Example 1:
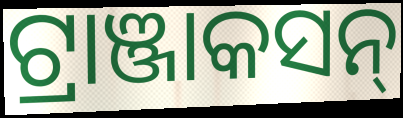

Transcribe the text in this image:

ଟ୍ରାଞ୍ଜାକସନ୍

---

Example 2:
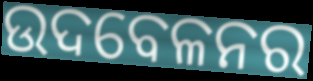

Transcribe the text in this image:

ଉଦବେଳନର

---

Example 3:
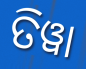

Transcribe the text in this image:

ତିୱା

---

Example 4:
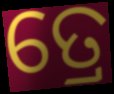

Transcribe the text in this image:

ତ୍ରେ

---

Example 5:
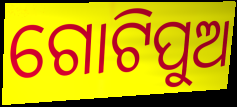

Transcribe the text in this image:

ଗୋଟିପୁଅ